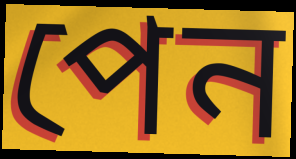
পেন